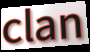
clan